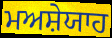
ਮਅਸ਼ੇਯਾਹ